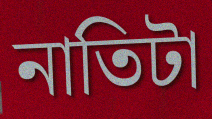
নাতিটা